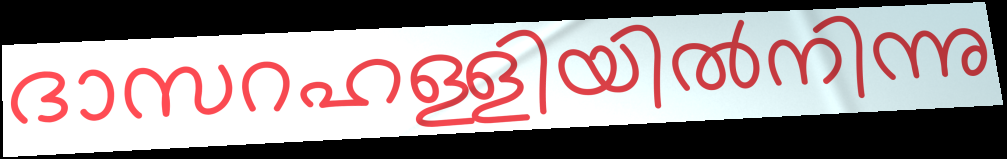
ദാസറഹള്ളിയിൽനിന്നു